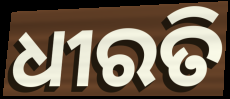
ଧୀରତି